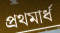
প্রথমার্ধ